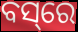
ବସ୍‌ରେ